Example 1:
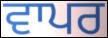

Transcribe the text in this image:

ਵਾਪਰ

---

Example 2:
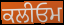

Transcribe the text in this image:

ਕਲੀਓਮ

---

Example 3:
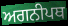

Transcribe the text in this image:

ਅਗਨੀਪਥ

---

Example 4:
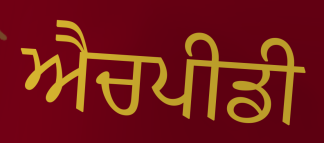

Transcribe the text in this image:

ਐਚਪੀਡੀ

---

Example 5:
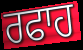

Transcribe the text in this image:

ਰਫਾਹ